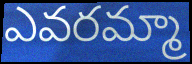
ఎవరమ్మా